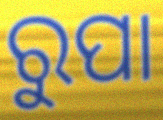
ରୁପା